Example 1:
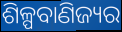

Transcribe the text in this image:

ଶିଳ୍ପବାଣିଜ୍ୟର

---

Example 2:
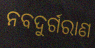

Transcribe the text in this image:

ନବଦୁର୍ଗରାଣ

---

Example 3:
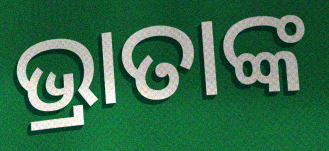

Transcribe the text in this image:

ଭ୍ରାତାଙ୍କ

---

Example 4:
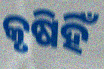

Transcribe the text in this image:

କୃଷିହିଁ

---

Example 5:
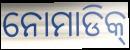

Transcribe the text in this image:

ନୋମାଡିକ୍